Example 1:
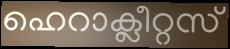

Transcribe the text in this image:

ഹെറാക്ലീറ്റസ്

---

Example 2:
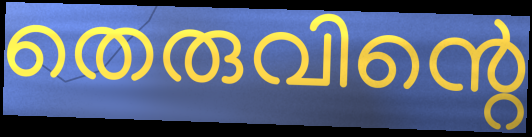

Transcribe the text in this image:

തെരുവിന്റെ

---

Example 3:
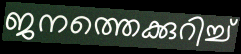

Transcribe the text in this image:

ജനത്തെക്കുറിച്ച്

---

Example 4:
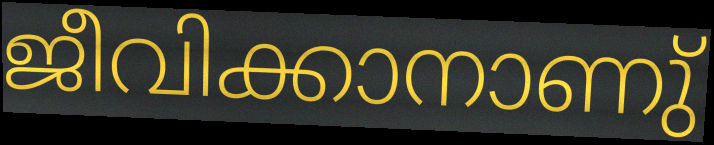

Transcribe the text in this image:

ജീവിക്കാനാണു്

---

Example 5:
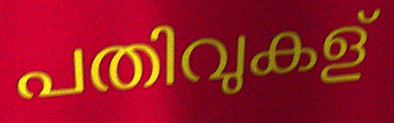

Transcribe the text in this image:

പതിവുകള്